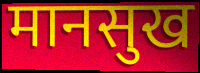
मानसुख